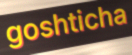
goshticha